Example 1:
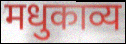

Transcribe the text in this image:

मधुकाव्य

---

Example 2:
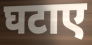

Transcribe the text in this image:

घटाए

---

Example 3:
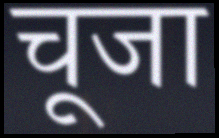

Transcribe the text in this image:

चूजा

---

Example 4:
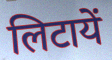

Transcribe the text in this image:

लिटायें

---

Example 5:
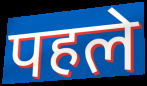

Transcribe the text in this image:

पहले